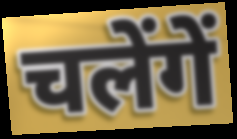
चलेंगें